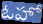
ఓహో